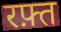
रफ़्त